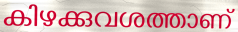
കിഴക്കുവശത്താണ്